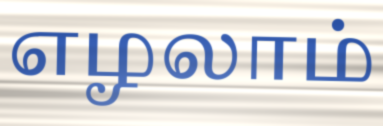
எழலாம்